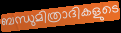
ബന്ധുമിത്രാദികളുടെ